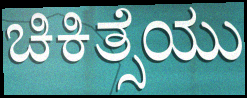
ಚಿಕಿತ್ಸೆಯು